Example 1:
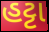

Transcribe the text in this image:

હટ્ટા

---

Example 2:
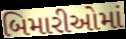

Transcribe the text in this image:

બિમારીઓમાં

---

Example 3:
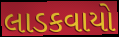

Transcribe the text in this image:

લાડકવાયો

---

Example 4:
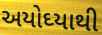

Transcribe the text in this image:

અયોઘ્યાથી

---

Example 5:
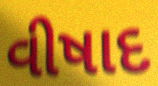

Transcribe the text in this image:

વીષાદ